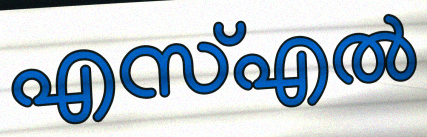
എസ്എൽ